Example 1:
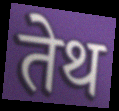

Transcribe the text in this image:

तेथ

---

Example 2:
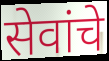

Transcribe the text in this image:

सेवांचे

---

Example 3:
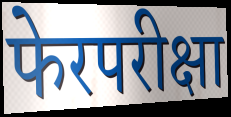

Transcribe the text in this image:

फेरपरीक्षा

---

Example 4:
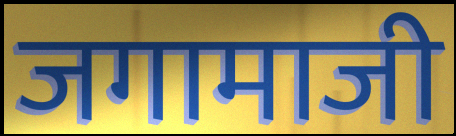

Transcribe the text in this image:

जगामाजी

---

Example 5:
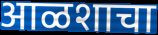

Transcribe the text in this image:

आळशाचा